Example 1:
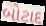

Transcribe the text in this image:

બોટાદ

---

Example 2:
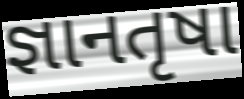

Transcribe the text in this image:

જ્ઞાનતૃષા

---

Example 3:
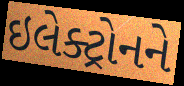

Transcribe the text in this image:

ઇલેક્ટ્રોનને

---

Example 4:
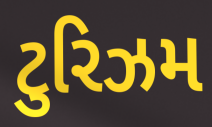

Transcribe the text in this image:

ટુરિઝમ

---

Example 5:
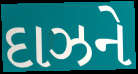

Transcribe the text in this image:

દાઝને